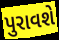
પુરાવશે